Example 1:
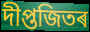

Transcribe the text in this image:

দীপ্তজিতৰ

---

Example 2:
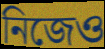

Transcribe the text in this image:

নিজেও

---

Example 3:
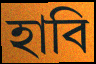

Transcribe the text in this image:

হাবি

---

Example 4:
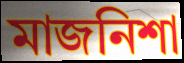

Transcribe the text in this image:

মাজনিশা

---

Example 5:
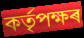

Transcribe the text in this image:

কৰ্তৃপক্ষৰ